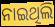
ନାଇଥିଲି